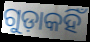
ଗୁଡ଼ାକହିଁ